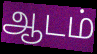
ஆடம்